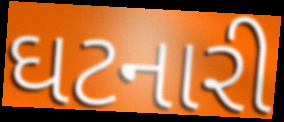
ઘટનારી